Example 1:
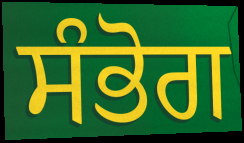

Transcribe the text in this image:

ਸੰਭੋਗ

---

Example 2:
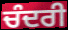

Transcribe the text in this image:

ਚੰਦਰੀ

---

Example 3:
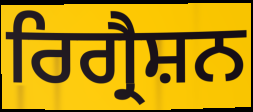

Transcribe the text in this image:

ਰਿਗ੍ਰੈਸ਼ਨ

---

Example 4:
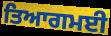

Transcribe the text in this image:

ਤਿਆਗਮਈ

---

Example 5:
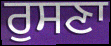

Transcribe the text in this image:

ਰੁਸਣਾ